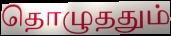
தொழுததும்